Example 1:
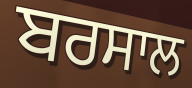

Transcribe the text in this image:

ਬਰਸਾਲ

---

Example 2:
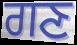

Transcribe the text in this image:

ਗਣ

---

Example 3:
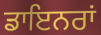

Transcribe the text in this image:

ਡਾਇਨਰਾਂ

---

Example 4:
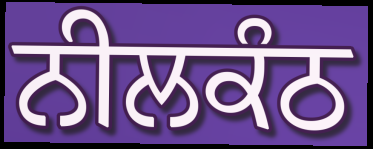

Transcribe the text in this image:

ਨੀਲਕੰਠ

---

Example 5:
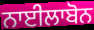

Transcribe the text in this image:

ਨਾਈਲਾਬੋਨ